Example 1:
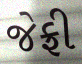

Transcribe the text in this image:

જેફ્રી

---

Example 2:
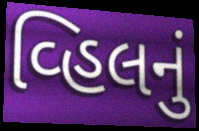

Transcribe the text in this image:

વ્હિલનું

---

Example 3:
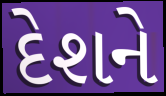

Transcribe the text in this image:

દેશને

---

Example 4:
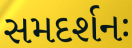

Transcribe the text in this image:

સમદર્શનઃ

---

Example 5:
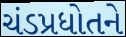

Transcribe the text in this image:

ચંડપ્રધોતને